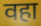
वहा